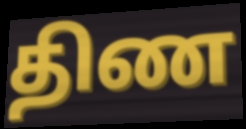
திண